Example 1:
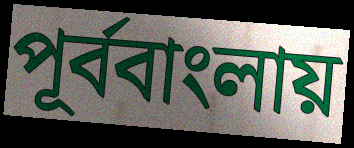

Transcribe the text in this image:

পূর্ববাংলায়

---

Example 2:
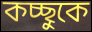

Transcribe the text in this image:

কচ্ছুকে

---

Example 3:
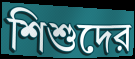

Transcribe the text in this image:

শিশুদের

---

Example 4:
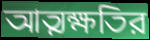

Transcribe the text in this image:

আত্মক্ষতির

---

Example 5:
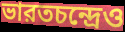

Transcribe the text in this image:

ভারতচন্দ্রেও